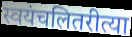
स्वयंचलितरीत्या